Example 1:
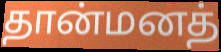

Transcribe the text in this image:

தான்மனத்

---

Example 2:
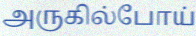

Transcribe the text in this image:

அருகில்போய்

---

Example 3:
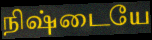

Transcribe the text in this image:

நிஷ்டையே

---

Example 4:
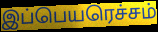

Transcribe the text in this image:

இப்பெயரெச்சம்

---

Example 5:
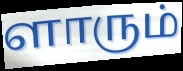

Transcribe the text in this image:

ளாரும்